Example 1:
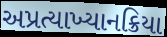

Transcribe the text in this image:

અપ્રત્યાખ્યાનક્રિયા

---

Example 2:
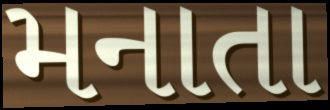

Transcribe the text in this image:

મનાતા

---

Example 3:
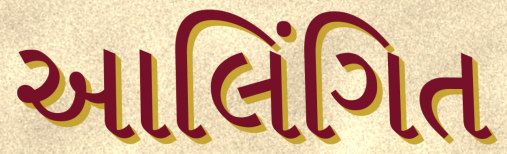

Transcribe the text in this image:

આલિંગિત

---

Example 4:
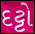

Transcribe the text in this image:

દટ્ટો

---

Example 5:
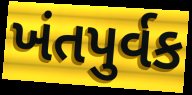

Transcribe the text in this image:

ખંતપુર્વક